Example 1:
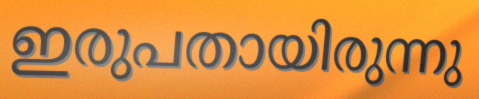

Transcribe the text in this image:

ഇരുപതായിരുന്നു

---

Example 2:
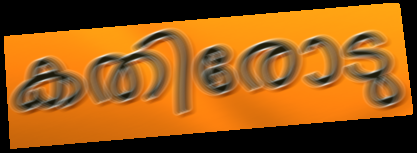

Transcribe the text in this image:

കതിരോടു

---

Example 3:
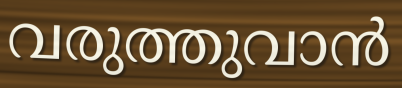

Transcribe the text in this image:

വരുത്തുവാൻ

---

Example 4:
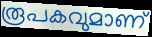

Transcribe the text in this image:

രൂപകവുമാണ്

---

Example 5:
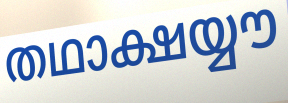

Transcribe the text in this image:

തഥാക്ഷയ്യൗ